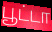
பூட்டா